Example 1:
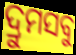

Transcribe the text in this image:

ଦ୍ରୁମସବୁ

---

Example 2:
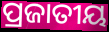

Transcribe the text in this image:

ପ୍ରଜାତୀୟ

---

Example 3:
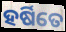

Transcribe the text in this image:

ହର୍ଷିତେ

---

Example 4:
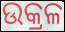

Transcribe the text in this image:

ଉକ୍ରଳ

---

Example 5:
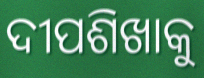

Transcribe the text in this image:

ଦୀପଶିଖାକୁ